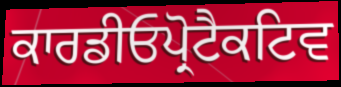
ਕਾਰਡੀਓਪ੍ਰੋਟੈਕਟਿਵ